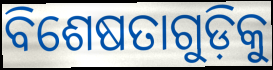
ବିଶେଷତାଗୁଡ଼ିକୁ